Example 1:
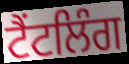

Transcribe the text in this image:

ਟੈਂਟਲਿੰਗ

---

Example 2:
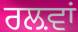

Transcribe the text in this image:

ਰਲ਼ਵਾਂ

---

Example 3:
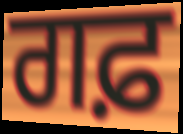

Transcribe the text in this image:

ਗਫ਼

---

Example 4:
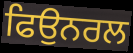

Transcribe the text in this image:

ਫਿਉਨਰਲ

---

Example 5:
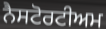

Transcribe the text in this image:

ਨੈਸਟੋਰਟੀਅਮ